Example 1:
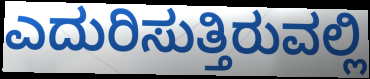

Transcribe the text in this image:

ಎದುರಿಸುತ್ತಿರುವಲ್ಲಿ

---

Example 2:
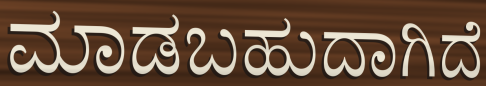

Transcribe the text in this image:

ಮಾಡಬಹುದಾಗಿದೆ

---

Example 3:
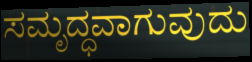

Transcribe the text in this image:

ಸಮೃದ್ಧವಾಗುವುದು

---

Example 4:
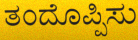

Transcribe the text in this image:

ತಂದೊಪ್ಪಿಸು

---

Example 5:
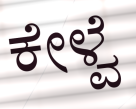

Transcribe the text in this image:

ಕೇಳ್ವೆ